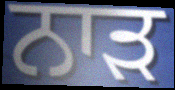
ਨਾੜ